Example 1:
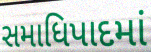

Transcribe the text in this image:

સમાધિપાદમાં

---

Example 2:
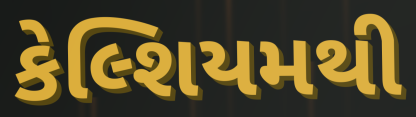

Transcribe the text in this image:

કેલ્શિયમથી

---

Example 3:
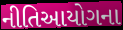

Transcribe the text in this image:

નીતિઆયોગના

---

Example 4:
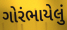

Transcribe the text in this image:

ગોરંભાયેલું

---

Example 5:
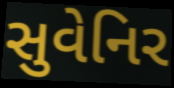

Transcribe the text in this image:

સુવેનિર